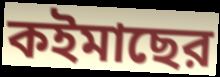
কইমাছের